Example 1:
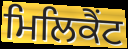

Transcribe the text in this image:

ਮਿਲਿਕੈਂਟ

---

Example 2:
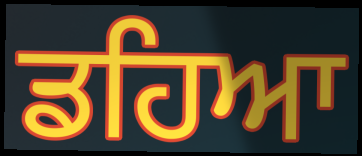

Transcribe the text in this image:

ਡਹਿਆ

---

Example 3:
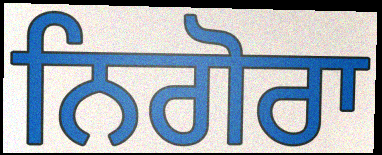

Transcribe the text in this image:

ਨਿਗੋਰਾ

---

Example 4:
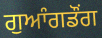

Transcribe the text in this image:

ਗੁਆੰਗਡੌਂਗ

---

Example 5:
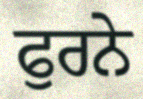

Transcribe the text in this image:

ਫੁਰਨੇ